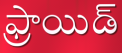
ఫ్రాయిడ్